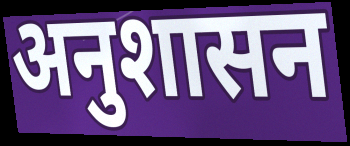
अनुशासन